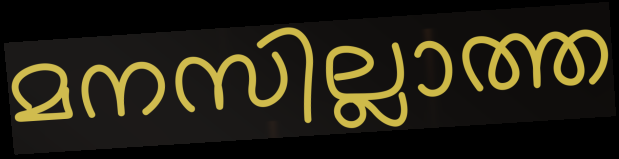
മനസില്ലാത്ത